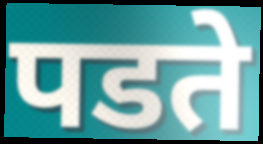
पडते